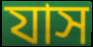
যাস